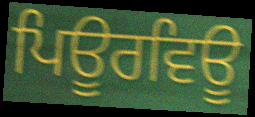
ਪਿਊਰਵਿਊ